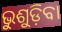
ଭୁଶୁଡ଼ିବା